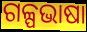
ଗଳ୍ପଭାଷା